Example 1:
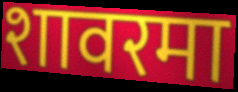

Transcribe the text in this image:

शावरमा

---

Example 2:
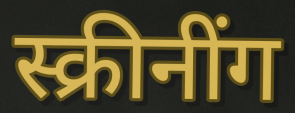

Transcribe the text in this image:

स्क्रीनींग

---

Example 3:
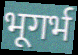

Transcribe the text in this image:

भूगर्भ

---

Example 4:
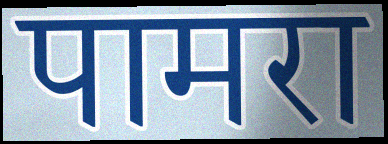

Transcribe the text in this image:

पामरा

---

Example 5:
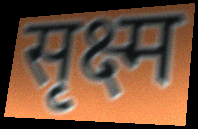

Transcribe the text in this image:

सृक्ष्म